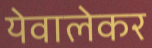
येवालेकर